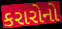
કરારોનો